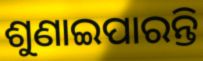
ଶୁଣାଇପାରନ୍ତି